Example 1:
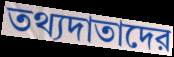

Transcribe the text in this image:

তথ্যদাতাদের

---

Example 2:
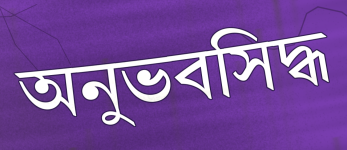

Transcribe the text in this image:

অনুভবসিদ্ধ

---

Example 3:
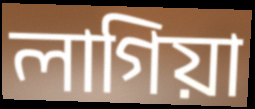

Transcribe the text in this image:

লাগিয়া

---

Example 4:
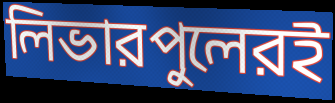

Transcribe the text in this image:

লিভারপুলেরই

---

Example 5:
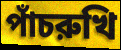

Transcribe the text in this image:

পাঁচরুখি